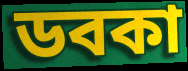
ডবকা